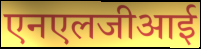
एनएलजीआई